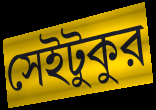
সেইটুকুর